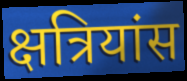
क्षत्रियांस